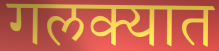
गलक्यात